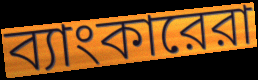
ব্যাংকারেরা